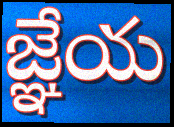
జ్ఞేయ